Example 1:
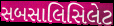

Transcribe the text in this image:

સબસાલિસિલેટ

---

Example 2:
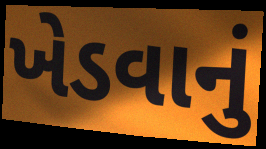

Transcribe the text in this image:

ખેડવાનું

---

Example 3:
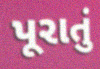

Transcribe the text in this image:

પૂરાતું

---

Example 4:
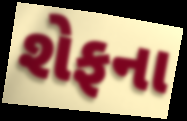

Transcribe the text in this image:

શેફના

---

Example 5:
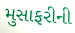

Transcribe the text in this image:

મુસાફરીની